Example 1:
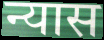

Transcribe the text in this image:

न्‍यास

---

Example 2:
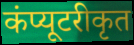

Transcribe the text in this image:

कंप्यूटरीकृत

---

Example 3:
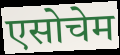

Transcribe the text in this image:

एसोचेम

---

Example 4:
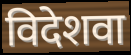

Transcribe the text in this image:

विदेशवा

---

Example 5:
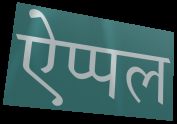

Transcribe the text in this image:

ऐप्पल